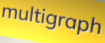
multigraph